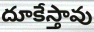
దూకేస్తావు